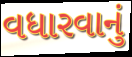
વધારવાનું